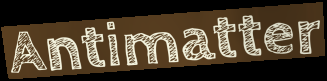
Antimatter